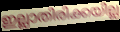
ഇല്ലാതിരിക്കയില്ല